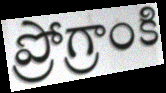
ప్రోగ్రాంకి